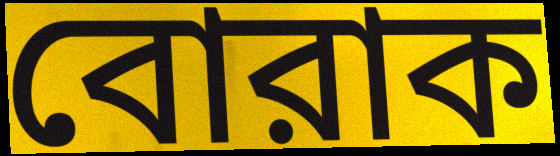
বোরাক